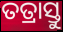
ତତ୍ରାସ୍ତୁ